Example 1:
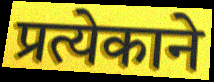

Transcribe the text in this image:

प्रत्येकाने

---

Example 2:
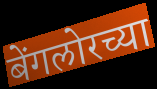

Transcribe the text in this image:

बेंगलोरच्या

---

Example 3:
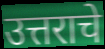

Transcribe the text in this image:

उत्तराचे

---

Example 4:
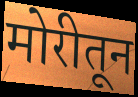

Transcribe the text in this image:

मोरीतून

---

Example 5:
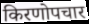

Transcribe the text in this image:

किरणोपचार